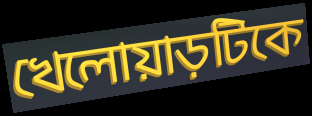
খেলোয়াড়টিকে